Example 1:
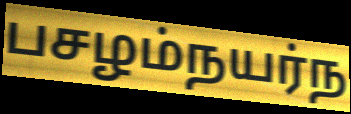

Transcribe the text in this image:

பசழம்நயர்ந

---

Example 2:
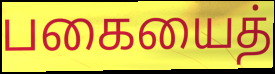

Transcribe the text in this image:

பகையைத்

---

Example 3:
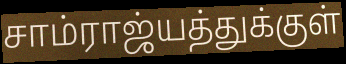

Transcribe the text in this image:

சாம்ராஜ்யத்துக்குள்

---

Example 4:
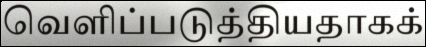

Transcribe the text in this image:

வெளிப்படுத்தியதாகக்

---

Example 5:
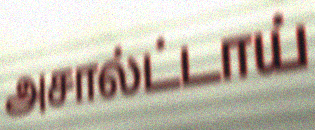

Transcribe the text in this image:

அசால்ட்டாய்